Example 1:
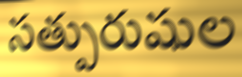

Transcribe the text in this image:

సత్పురుషుల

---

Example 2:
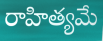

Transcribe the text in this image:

రాహిత్యమే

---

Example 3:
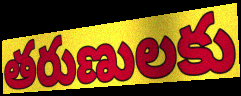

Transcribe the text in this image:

తరుణులకు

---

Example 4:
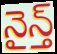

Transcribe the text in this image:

నైన్త్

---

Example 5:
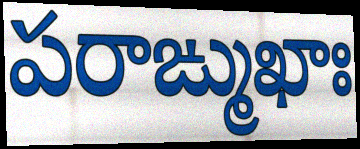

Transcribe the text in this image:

పరాఙ్ముఖాః